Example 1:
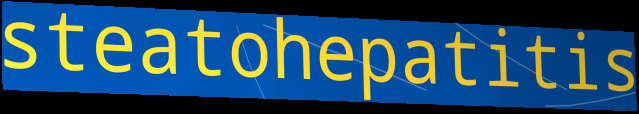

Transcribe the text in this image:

steatohepatitis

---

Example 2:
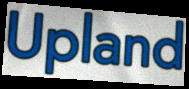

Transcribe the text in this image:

Upland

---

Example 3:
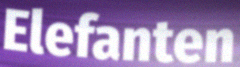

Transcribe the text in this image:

Elefanten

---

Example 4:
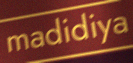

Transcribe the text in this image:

madidiya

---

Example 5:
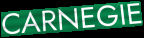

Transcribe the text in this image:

CARNEGIE